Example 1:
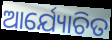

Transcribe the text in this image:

ଆର୍ଯ୍ୟୋଚିତ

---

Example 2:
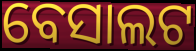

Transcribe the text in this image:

ବେସାଲଟ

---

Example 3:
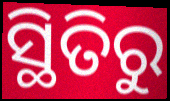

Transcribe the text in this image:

ସ୍ଥିତିରୁ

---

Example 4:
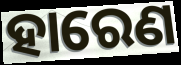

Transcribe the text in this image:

ହାରେଣ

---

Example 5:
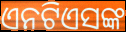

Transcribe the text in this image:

ଏନଟିଏସଙ୍କ